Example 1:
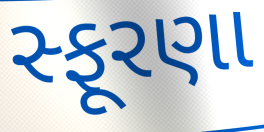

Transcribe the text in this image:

સ્ફૂરણા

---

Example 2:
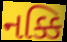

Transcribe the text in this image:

નક્કિ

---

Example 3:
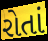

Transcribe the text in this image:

રોતાં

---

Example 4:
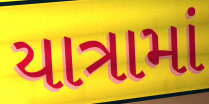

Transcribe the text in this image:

યાત્રામાં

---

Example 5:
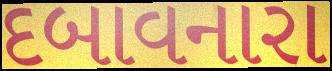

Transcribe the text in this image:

દબાવનારા